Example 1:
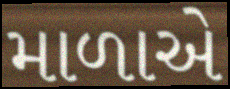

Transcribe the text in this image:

માળાએ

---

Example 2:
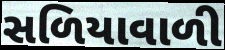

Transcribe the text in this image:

સળિયાવાળી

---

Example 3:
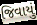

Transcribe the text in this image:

જિવાયું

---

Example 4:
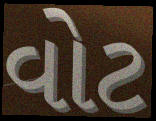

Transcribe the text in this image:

વોટ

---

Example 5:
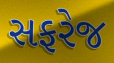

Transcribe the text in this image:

સફરેજ